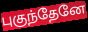
புகுந்தேனே